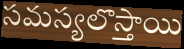
సమస్యలొస్తాయి